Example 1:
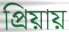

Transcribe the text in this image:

প্রিয়ায়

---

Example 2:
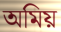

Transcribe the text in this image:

অমিয়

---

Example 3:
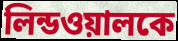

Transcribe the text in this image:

লিন্ডওয়ালকে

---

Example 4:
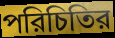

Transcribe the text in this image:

পরিচিতির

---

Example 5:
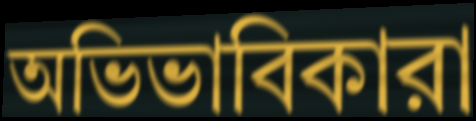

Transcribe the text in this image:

অভিভাবিকারা